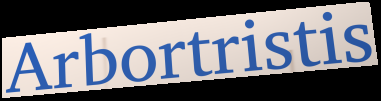
Arbortristis